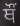
ਥੌਂ